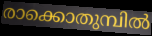
രാക്കൊതുമ്പിൽ